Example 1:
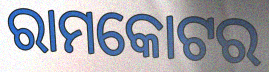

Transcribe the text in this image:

ରାମକୋଟର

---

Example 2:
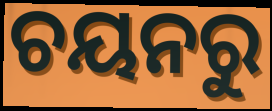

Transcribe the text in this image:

ଚୟନରୁ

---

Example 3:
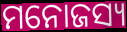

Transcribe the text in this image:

ମନୋଜସ୍ୟ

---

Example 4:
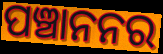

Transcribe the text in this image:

ପଞ୍ଚାନନର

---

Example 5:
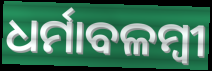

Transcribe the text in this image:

ଧର୍ମାବଳମ୍ବୀ